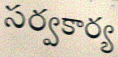
సర్వకార్య